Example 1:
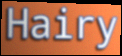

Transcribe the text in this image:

Hairy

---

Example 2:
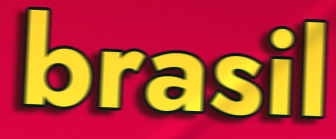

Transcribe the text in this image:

brasil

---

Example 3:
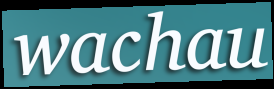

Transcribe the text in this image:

wachau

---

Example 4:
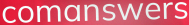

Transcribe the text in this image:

comanswers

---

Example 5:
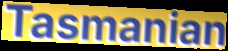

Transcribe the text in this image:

Tasmanian